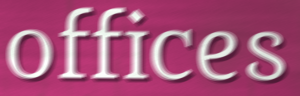
offices